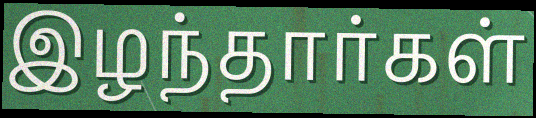
இழந்தார்கள்